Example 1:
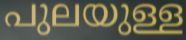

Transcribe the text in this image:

പുലയുള്ള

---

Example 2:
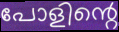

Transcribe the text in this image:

പോളിന്റെ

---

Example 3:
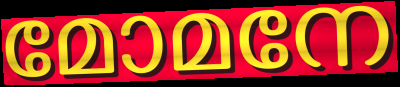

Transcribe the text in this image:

മോമനേ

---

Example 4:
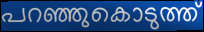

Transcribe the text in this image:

പറഞ്ഞുകൊടുത്ത്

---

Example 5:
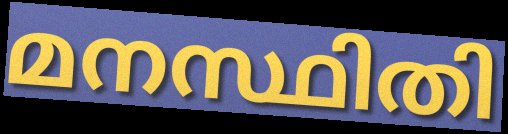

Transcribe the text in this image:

മനസ്ഥിതി